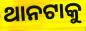
ଥାନଟାକୁ